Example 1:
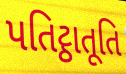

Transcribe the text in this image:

પતિટ્ઠાતૂતિ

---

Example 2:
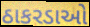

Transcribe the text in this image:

ઠાકરડાઓ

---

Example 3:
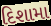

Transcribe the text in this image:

દિશામા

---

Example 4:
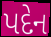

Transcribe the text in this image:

પદેન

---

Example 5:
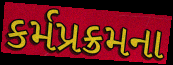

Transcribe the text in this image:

કર્મપ્રક્રમના